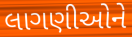
લાગણીઓને